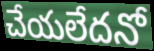
చేయలేదనో